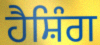
ਹੈਸ਼ਿੰਗ